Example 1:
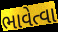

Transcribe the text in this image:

ભાવેત્વા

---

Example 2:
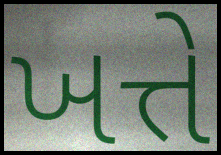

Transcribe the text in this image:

ખત્તે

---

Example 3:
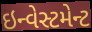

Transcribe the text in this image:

ઇન્વેસ્ટમેન્ટ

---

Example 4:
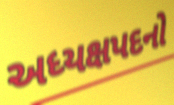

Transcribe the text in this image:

અધ્યક્ષપદનો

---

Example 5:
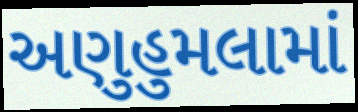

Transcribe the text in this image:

અણુહુમલામાં